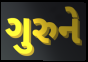
ગુરુને